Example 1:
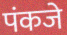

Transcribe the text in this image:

पंकजे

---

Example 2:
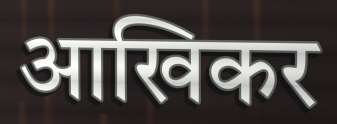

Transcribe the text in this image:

आखिकर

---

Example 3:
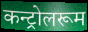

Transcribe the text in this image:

कन्ट्रोलरूम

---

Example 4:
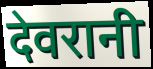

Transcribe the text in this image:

देवरानी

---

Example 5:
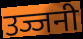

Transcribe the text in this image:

उज्जनी